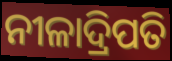
ନୀଳାଦ୍ରିପତି